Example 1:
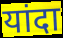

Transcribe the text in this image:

यांदा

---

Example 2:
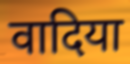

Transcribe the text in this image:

वादिया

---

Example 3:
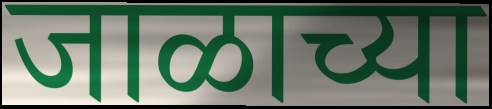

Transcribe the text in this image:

जाळाच्या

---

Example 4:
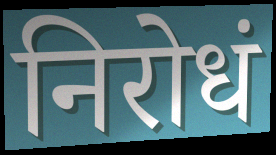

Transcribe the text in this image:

निरोधं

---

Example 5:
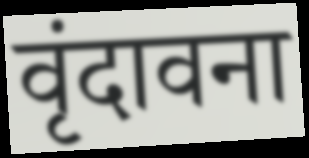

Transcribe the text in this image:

वृंदावना